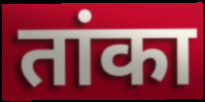
तांका